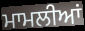
ਮਾਮਲੀਆਂ